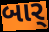
બાર્